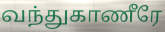
வந்துகாணீரே